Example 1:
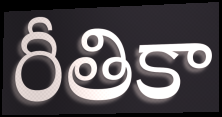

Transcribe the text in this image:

రీతికా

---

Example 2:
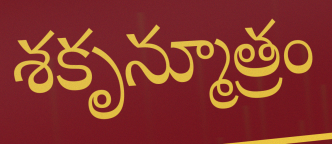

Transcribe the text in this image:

శకృన్మూత్రం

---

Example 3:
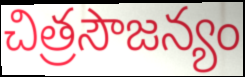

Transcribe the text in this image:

చిత్రసౌజన్యం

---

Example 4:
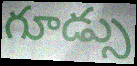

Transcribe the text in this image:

గూడ్సు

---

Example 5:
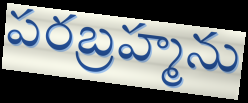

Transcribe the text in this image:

పరబ్రహ్మను